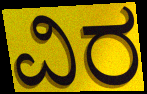
ವಿರ